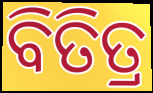
ବିତିତ୍ର